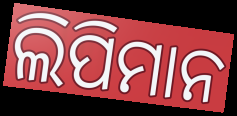
ଲିପିମାନ